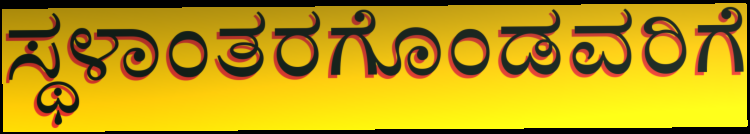
ಸ್ಥಳಾಂತರಗೊಂಡವರಿಗೆ